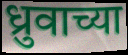
ध्रुवाच्या